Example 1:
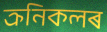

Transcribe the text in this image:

ক্ৰনিকলৰ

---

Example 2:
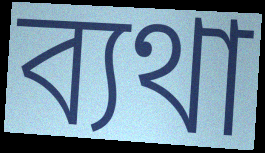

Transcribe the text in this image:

ব্যথা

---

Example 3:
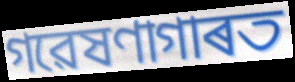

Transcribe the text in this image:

গৱেষণাগাৰত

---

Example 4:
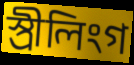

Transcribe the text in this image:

স্ত্ৰীলিংগ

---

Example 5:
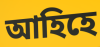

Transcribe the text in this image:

আহিহে